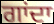
ਗਾਂਦਾ